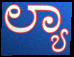
ಲ್ಯಾ